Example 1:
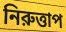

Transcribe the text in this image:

নিরুত্তাপ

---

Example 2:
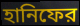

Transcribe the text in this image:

হানিফের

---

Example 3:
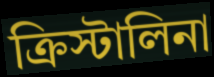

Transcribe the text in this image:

ক্রিস্টালিনা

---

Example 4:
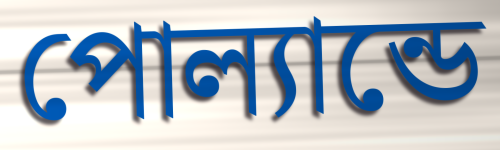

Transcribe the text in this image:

পোল্যান্ডে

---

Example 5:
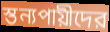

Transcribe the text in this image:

স্তন্যপায়ীদের